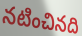
నటించినది